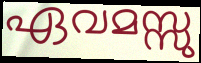
ഏവമസ്സു